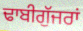
ਢਾਬੀਗੁੱਜਰਾਂ